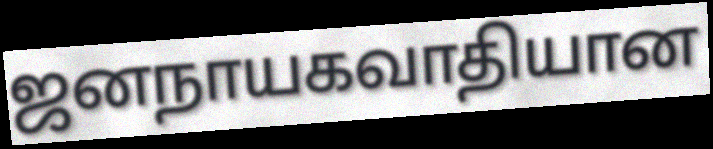
ஜனநாயகவாதியான